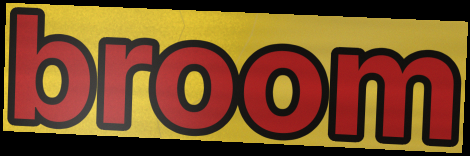
broom